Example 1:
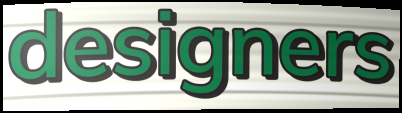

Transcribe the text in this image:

designers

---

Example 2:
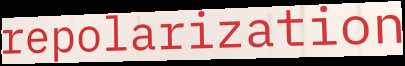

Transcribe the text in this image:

repolarization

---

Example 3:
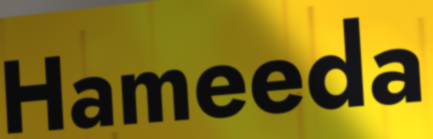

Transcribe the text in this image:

Hameeda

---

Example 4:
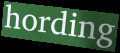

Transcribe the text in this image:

hording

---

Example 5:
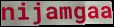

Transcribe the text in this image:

nijamgaa